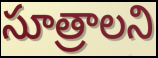
సూత్రాలని